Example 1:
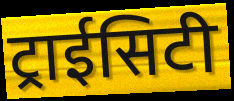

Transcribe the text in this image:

ट्राईसिटी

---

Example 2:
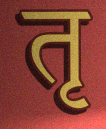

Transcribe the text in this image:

तृ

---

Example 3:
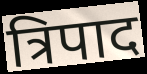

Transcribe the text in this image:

त्रिपाद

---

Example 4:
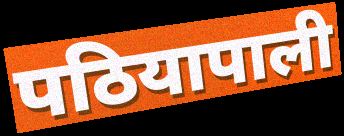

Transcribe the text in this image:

पठियापाली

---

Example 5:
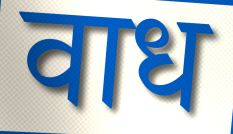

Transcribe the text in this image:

वाध